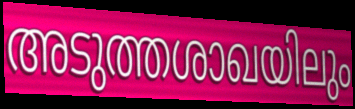
അടുത്തശാഖയിലും